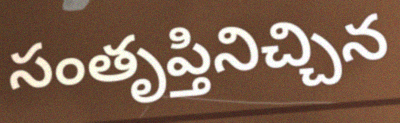
సంతృప్తినిచ్చిన